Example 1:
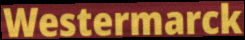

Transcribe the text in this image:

Westermarck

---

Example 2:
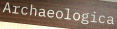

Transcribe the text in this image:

Archaeologica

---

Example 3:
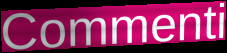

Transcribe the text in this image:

Commenti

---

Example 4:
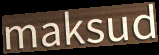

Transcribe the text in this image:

maksud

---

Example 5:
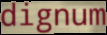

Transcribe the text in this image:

dignum